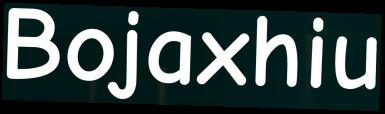
Bojaxhiu